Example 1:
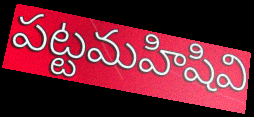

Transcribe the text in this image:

పట్టమహిషివి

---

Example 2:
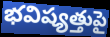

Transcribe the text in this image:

భవిష్యత్తుపై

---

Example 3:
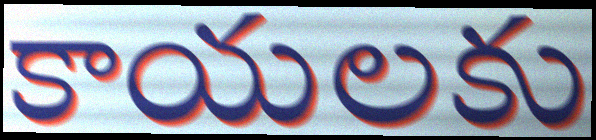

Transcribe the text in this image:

కాయలకు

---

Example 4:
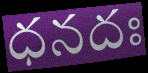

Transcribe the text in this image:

ధనదః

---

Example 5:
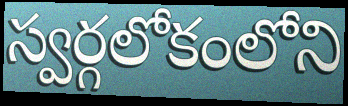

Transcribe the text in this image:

స్వర్గలోకంలోని